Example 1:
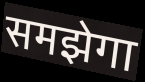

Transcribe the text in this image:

समझेगा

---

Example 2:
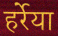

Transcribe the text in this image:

हर्रेया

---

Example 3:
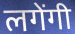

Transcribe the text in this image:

लगेंगी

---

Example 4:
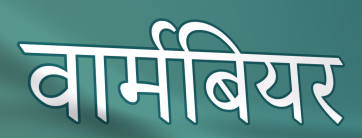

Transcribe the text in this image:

वार्मबियर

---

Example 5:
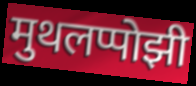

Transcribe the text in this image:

मुथलप्पोझी